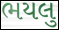
ભયલુ